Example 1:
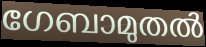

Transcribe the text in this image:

ഗേബാമുതൽ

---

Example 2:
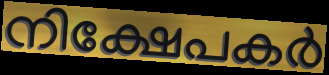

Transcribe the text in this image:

നിക്ഷേപകർ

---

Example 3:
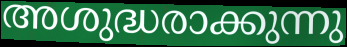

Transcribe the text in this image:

അശുദ്ധരാക്കുന്നു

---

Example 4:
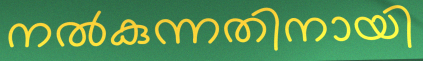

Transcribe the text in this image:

നൽകുന്നതിനായി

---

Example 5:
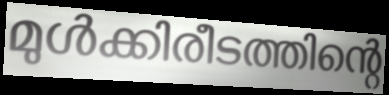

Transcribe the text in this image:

മുൾക്കിരീടത്തിന്റെ